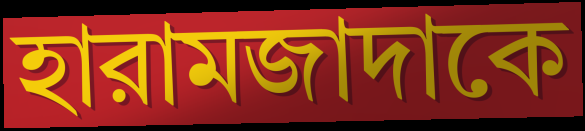
হারামজাদাকে